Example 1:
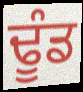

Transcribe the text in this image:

ਢੂੰਡ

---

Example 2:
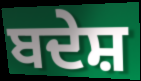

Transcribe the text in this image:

ਬਦੇਸ਼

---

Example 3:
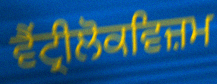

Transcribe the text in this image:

ਵੈਂਟ੍ਰੀਲੋਕਵਿਜ਼ਮ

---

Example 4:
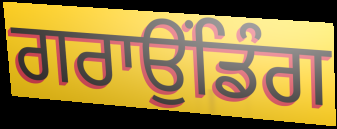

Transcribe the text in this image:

ਗਰਾਉਂਡਿੰਗ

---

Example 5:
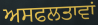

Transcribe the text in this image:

ਅਸਫਲਤਾਵਾਂ